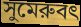
সুমেরুবৎ